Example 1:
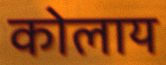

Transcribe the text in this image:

कोलाय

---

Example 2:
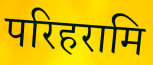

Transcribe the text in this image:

परिहरामि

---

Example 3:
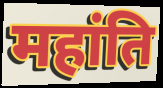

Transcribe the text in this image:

महांति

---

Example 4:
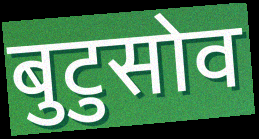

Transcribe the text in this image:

बुटुसोव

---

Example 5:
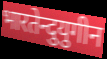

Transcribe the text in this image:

भारतेन्दुयुगीन